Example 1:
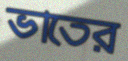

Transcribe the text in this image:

ভাতের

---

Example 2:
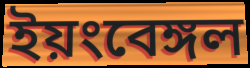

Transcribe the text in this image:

ইয়ংবেঙ্গল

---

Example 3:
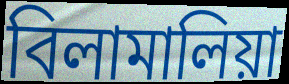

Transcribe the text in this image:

বিলামালিয়া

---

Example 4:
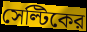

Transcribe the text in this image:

সেল্টিকের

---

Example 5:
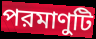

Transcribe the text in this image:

পরমাণুটি